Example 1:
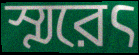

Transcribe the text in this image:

স্মরেৎ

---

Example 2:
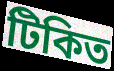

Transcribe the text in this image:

টিকিত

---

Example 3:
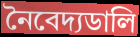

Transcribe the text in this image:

নৈবেদ্যডালি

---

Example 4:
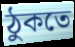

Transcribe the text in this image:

ঠুকতে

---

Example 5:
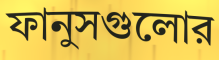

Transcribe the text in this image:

ফানুসগুলোর